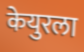
केयुरला